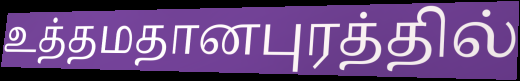
உத்தமதானபுரத்தில்